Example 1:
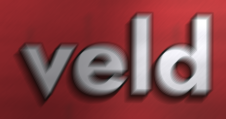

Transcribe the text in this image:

veld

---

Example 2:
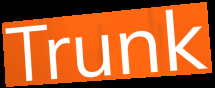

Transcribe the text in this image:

Trunk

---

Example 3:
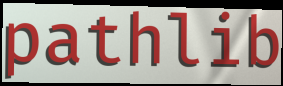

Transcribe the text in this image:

pathlib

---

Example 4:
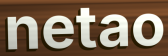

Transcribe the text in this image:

netao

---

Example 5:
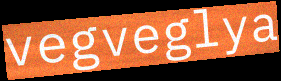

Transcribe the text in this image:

vegveglya